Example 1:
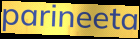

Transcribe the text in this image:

parineeta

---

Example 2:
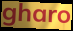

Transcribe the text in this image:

gharo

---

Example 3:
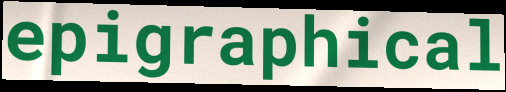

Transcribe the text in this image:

epigraphical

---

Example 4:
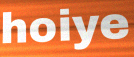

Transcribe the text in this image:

hoiye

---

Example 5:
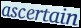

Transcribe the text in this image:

ascertain